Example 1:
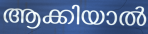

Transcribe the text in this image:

ആക്കിയാൽ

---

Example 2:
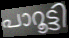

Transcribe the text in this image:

പാറൂട്ടി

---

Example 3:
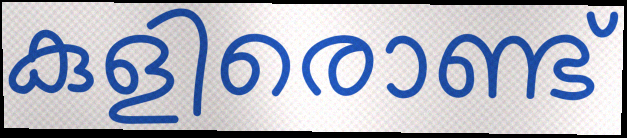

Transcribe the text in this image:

കുളിരൊണ്ട്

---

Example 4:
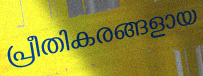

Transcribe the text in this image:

പ്രീതികരങ്ങളായ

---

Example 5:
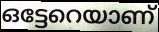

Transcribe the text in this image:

ഒട്ടേറെയാണ്